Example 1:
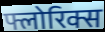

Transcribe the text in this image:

फ्लोरिक्स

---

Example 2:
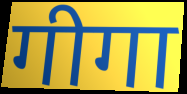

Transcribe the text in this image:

गीगा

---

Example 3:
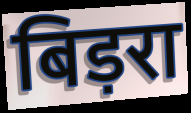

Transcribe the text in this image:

बिड़रा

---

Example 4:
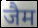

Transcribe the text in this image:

जैम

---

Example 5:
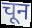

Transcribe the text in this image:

चून